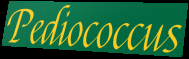
Pediococcus